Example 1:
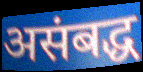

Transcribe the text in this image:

असंबद्ध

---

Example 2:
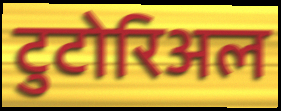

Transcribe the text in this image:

टुटोरिअल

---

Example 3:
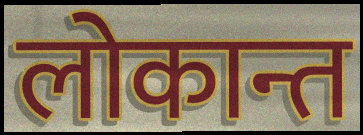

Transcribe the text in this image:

लोकान्त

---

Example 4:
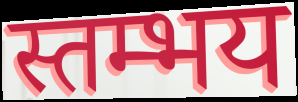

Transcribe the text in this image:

स्तम्भय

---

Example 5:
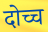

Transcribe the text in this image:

दोच्च